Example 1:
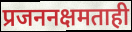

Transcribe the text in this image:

प्रजननक्षमताही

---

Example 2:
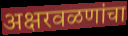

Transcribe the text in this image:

अक्षरवळणांचा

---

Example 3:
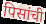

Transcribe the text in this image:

पिसांची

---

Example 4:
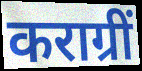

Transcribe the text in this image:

कराग्रीं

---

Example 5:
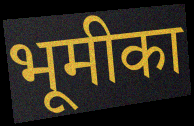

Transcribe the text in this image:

भूमीका